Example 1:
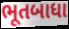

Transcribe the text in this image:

ભૂતબાધા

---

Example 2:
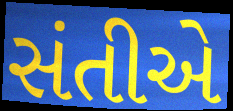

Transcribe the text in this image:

સંતીએ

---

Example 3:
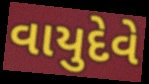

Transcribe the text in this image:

વાયુદેવે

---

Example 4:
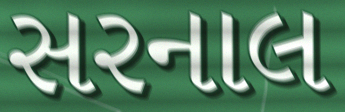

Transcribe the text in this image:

સરનાલ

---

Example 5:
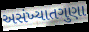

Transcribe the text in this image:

અસંખ્યાતગુણા